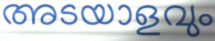
അടയാളവും